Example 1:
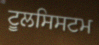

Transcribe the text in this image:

ਟੂਲਸਿਸਟਮ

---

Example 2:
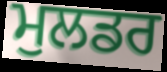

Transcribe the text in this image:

ਮੁਲਡਰ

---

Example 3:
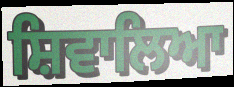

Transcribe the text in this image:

ਸ਼ਿਵਾਲਿਆ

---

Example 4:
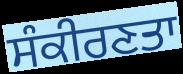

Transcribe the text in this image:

ਸੰਕੀਰਣਤਾ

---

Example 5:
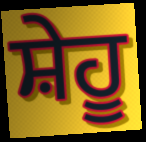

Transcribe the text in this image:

ਸ਼ੇਹੂ